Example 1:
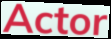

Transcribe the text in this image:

Actor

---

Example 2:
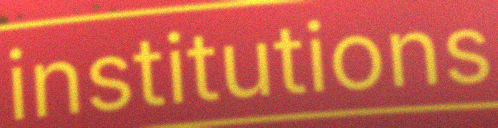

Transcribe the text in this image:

institutions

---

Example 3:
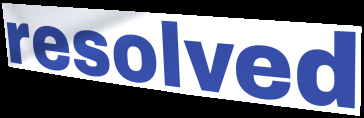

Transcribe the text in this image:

resolved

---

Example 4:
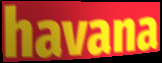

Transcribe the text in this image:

havana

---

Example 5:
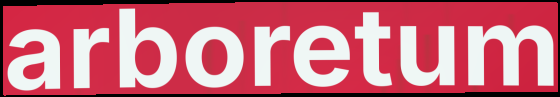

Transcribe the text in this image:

arboretum